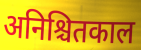
अनिश्चितकाल